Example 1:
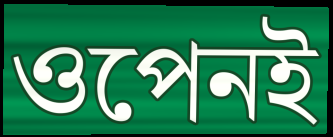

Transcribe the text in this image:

ওপেনই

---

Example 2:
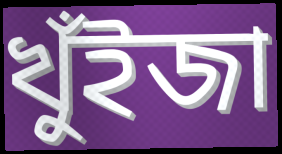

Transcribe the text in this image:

খুঁইজা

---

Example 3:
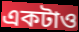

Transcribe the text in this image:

একটাও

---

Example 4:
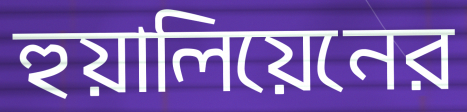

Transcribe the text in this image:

হুয়ালিয়েনের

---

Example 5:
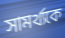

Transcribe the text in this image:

সামর্থ্যকে